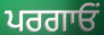
ਪਰਗਾਓਂ